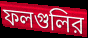
ফলগুলির